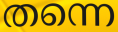
തന്നെ